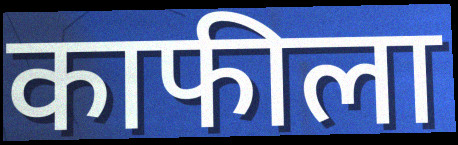
काफीला